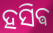
ହସିଵ